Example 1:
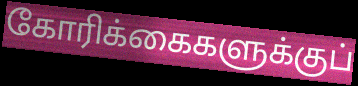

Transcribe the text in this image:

கோரிக்கைகளுக்குப்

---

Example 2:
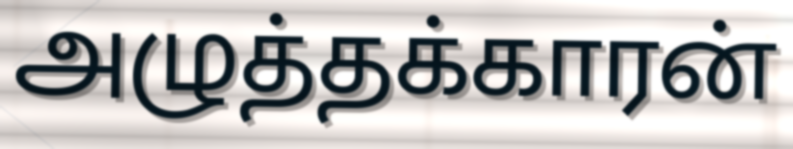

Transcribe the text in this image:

அழுத்தக்காரன்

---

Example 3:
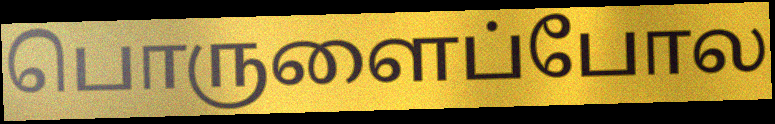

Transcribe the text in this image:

பொருளைப்போல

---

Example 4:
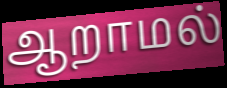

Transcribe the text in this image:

ஆறாமல்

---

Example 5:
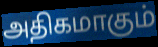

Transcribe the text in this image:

அதிகமாகும்